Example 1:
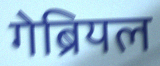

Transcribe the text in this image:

गेब्रियल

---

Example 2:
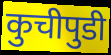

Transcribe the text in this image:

कुचीपुडी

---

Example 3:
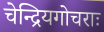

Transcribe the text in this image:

चेन्द्रियगोचराः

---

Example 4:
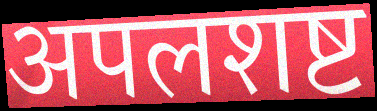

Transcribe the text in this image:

अपलशष्ट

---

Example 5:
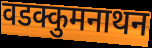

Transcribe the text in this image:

वडक्कुमनाथन